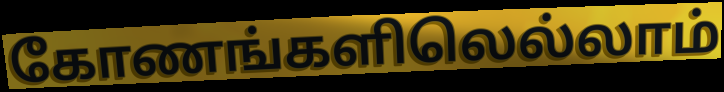
கோணங்களிலெல்லாம்